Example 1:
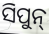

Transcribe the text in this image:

ସିପୁନ୍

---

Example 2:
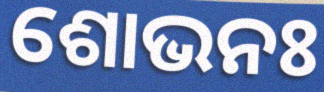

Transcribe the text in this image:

ଶୋଭନଃ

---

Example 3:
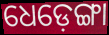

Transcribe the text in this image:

ଧେଡ଼େଙ୍ଗା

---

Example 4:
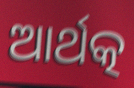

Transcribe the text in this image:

ଆର୍ଥତ୍କ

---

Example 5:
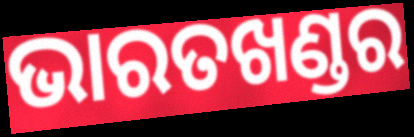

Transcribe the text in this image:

ଭାରତଖଣ୍ଡର